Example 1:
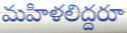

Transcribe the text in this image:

మహిళలిద్దరూ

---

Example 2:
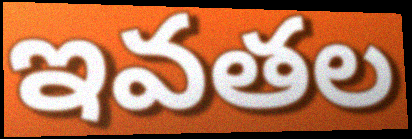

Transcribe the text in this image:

ఇవతల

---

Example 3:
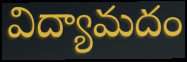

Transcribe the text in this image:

విద్యామదం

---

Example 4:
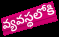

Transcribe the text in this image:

వ్యవస్థలోకి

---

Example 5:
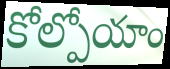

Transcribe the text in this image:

కోల్పోయాం